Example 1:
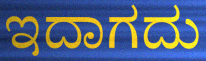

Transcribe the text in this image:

ಇದಾಗದು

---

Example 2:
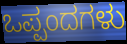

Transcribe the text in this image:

ಒಪ್ಪಂದಗಳು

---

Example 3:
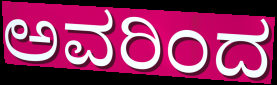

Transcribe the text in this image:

ಅವರಿಂದ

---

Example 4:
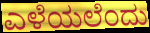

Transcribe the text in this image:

ಎಳೆಯಲೆಂದು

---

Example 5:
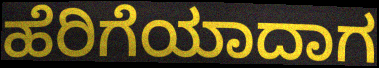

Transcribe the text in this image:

ಹೆರಿಗೆಯಾದಾಗ